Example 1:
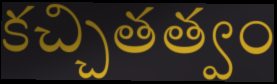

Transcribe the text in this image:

కచ్చితత్వం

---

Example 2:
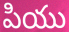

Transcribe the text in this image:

పియు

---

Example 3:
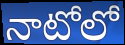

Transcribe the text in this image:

నాటోలో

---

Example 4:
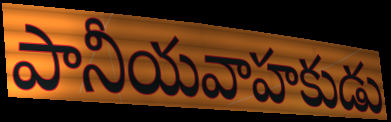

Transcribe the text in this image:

పానీయవాహకుడు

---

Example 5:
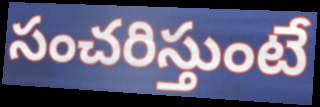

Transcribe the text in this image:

సంచరిస్తుంటే